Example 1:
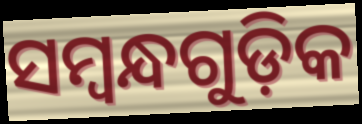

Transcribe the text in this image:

ସମ୍ବନ୍ଧଗୁଡ଼ିକ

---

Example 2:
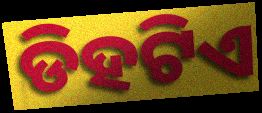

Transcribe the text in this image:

ଡିହଟିଏ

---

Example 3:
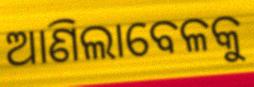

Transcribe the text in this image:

ଆଣିଲାବେଳକୁ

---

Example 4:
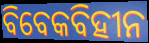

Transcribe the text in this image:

ବିବେକବିହୀନ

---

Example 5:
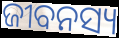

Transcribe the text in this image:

ଜୀବନସ୍ୟ